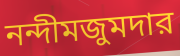
নন্দীমজুমদার